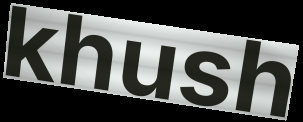
khush